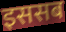
इससब